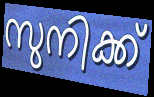
സുനിക്ക്